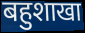
बहुशाखा